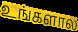
உங்களால